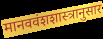
मानववंशशास्त्रानुसार